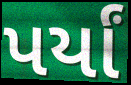
પર્યાં